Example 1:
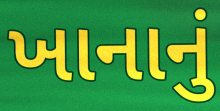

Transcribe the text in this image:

ખાનાનું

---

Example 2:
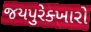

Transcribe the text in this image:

જયપુરેક્ખારો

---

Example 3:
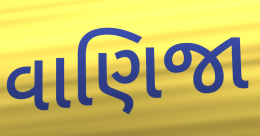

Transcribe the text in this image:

વાણિજા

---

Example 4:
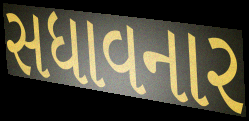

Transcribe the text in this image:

સધાવનાર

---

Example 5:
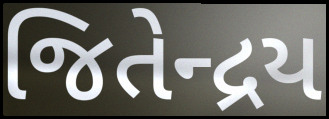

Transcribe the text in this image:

જિતેન્દ્રય